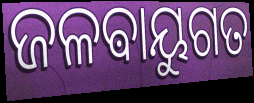
ଜଳଵାୟୁଗତ